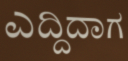
ಎದ್ದಿದಾಗ